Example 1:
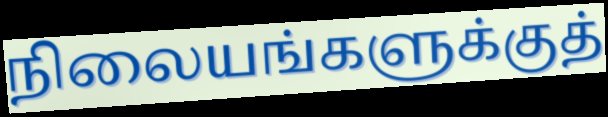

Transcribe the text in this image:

நிலையங்களுக்குத்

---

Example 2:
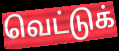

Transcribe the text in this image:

வெட்டுக்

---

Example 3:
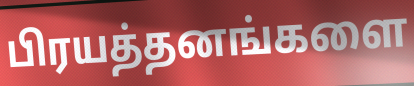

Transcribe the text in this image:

பிரயத்தனங்களை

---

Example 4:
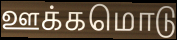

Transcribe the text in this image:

ஊக்கமொடு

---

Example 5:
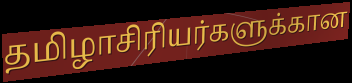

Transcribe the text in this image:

தமிழாசிரியர்களுக்கான